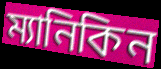
ম্যানিকিন